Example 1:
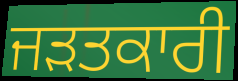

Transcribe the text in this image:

ਜੜਤਕਾਰੀ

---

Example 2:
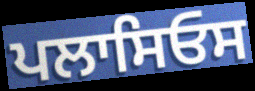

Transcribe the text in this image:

ਪਲਾਸਿਓਸ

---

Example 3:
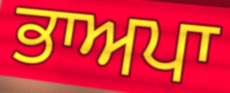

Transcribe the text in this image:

ਭਾਅਪਾ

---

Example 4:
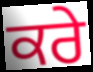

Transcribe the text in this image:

ਕਰੇ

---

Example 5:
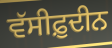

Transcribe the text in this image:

ਵੱਸੀਫ਼ੁਦੀਨ